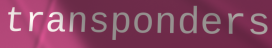
transponders